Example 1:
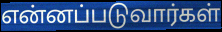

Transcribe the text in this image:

என்னப்படுவார்கள்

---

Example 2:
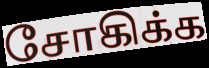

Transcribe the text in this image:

சோகிக்க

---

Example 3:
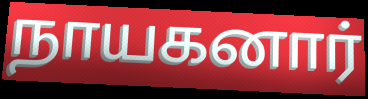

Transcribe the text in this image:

நாயகனார்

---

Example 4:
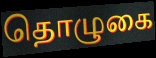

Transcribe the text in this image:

தொழுகை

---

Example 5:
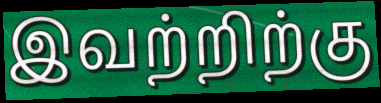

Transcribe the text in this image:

இவற்றிற்கு